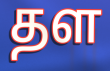
தள